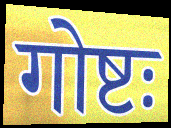
गोष्टः